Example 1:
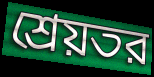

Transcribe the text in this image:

শ্রেয়তর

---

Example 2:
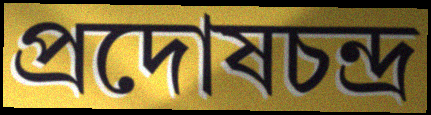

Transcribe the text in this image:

প্রদোষচন্দ্র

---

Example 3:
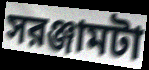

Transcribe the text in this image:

সরঞ্জামটা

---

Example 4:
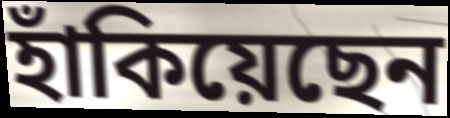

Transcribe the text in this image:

হাঁকিয়েছেন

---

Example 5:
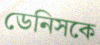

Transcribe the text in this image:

ডেনিসকে